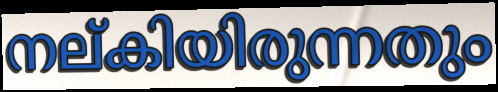
നല്കിയിരുന്നതും